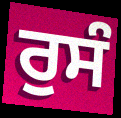
ਰੁਸੰ